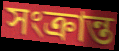
সংক্ৰান্ত